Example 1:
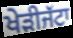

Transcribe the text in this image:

ਖੇੜੀਜੱਟਾ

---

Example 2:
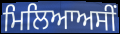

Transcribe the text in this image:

ਮਿਲਿਆਅਸੀਂ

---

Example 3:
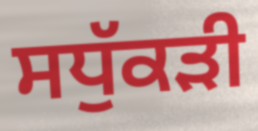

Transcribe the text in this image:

ਸਧੁੱਕੜੀ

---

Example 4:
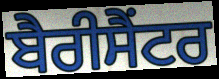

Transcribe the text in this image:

ਬੈਰੀਸੈਂਟਰ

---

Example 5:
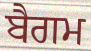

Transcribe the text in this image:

ਬੈਗਮ